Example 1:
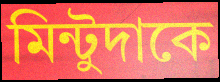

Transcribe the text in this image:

মিন্টুদাকে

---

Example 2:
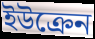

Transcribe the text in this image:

ইউক্রেন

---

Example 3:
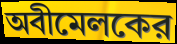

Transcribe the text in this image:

অবীমেলকের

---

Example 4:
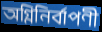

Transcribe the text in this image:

অগ্নিনির্বাপণী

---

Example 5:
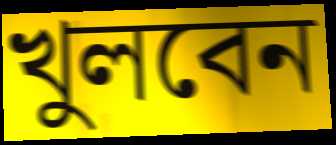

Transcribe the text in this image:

খুলবেন